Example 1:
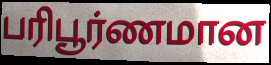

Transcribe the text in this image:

பரிபூர்ணமான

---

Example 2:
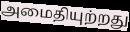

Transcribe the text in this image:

அமைதியுற்றது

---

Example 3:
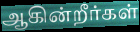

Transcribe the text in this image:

ஆகின்றீர்கள்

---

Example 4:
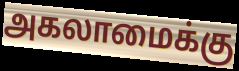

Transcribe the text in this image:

அகலாமைக்கு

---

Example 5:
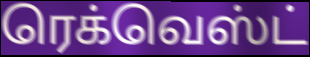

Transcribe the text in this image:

ரெக்வெஸ்ட்